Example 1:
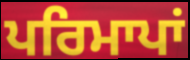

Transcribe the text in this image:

ਪਰਿਮਾਪਾਂ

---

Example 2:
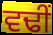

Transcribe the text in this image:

ਵਢੀਂ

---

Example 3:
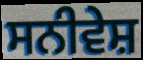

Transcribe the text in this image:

ਸਨੀਵੇਸ਼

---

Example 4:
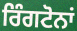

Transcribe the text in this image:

ਰਿੰਗਟੋਨਾਂ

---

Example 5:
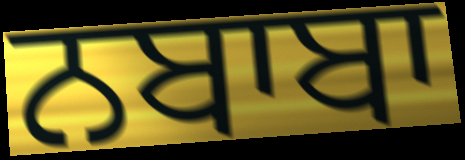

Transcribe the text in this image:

ਨਬਾਬਾ